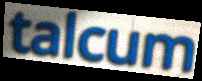
talcum